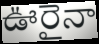
ఊరైనా